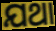
ଯଥା